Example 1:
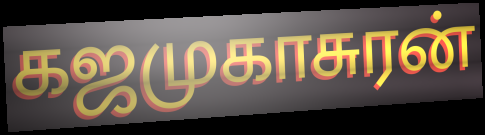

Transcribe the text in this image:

கஜமுகாசுரன்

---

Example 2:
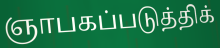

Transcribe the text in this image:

ஞாபகப்படுத்திக்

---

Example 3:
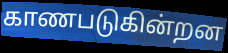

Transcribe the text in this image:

காணபடுகின்றன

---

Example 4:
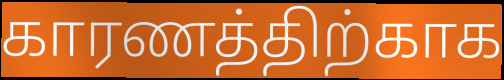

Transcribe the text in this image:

காரணத்திற்காக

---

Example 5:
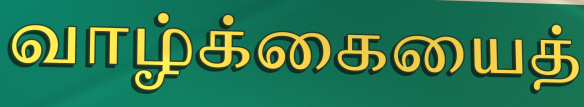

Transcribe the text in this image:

வாழ்க்கையைத்